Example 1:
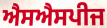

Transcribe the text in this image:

ਐਸਐਸਪੀਜ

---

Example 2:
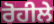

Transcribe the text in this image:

ਰੋਹੀਲੇ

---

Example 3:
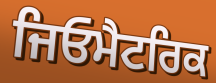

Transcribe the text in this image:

ਜਿਓਮੈਟਰਿਕ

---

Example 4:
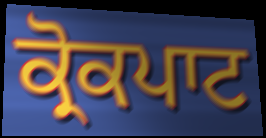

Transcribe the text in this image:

ਕ੍ਰੋਕਪਾਟ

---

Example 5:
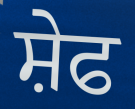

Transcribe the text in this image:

ਸ਼ੇਫ